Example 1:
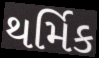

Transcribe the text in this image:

થર્મિક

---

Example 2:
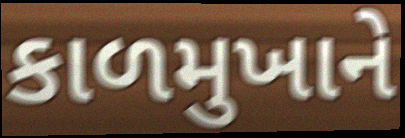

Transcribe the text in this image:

કાળમુખાને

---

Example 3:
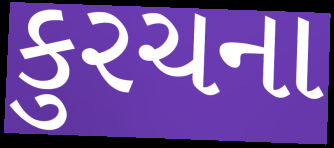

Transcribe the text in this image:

કુરચના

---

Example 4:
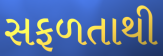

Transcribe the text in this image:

સફળતાથી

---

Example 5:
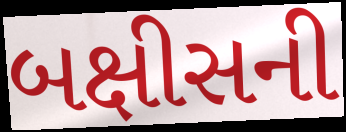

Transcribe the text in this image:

બક્ષીસની